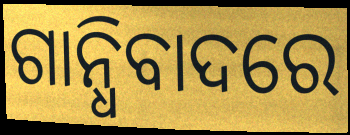
ଗାନ୍ଧିବାଦରେ